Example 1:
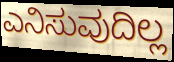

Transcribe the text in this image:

ಎನಿಸುವುದಿಲ್ಲ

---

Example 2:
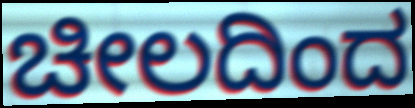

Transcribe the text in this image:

ಚೀಲದಿಂದ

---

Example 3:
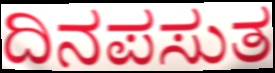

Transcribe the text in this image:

ದಿನಪಸುತ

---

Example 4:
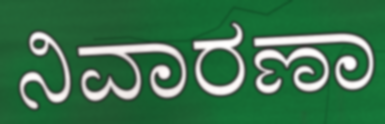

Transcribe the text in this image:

ನಿವಾರಣಾ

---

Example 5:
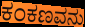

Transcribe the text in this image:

ಕಂಕಣವನು